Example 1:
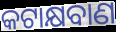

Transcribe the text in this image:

କଟାକ୍ଷବାଣ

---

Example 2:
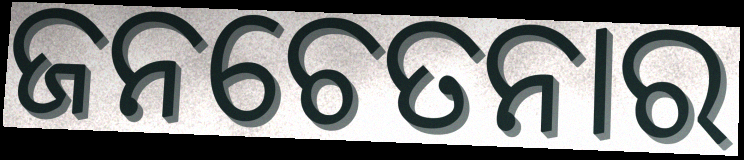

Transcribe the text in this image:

ଜନଚେତନାର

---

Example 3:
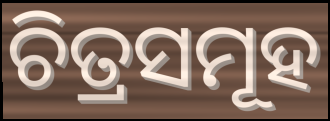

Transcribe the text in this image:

ଚିତ୍ରସମୂହ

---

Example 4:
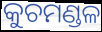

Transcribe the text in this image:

କୁଚମଣ୍ଡଳ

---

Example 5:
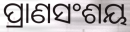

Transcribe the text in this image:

ପ୍ରାଣସଂଶୟ